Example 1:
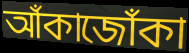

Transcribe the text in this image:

আঁকাজোঁকা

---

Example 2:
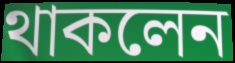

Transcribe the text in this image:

থাকলেন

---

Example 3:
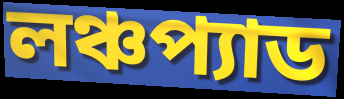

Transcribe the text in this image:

লঞ্চপ্যাড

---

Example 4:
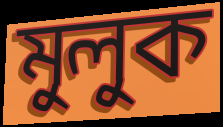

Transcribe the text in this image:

মুলুক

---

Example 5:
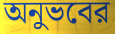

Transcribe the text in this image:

অনুভবের